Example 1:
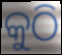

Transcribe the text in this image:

କୁଠି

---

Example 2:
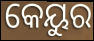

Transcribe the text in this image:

କେୟୁର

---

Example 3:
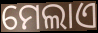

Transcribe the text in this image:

ମେଲାଏ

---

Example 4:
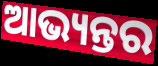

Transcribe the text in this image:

ଆଭ୍ୟନ୍ତର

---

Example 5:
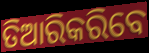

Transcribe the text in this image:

ତିଆରିକରିବେ